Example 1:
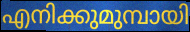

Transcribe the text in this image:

എനിക്കുമുമ്പായി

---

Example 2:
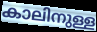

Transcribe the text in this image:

കാലിനുള്ള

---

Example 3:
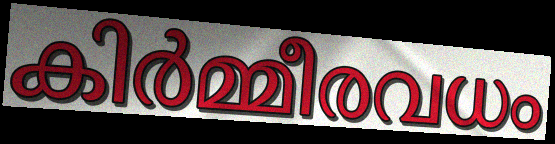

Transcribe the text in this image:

കിർമ്മീരവധം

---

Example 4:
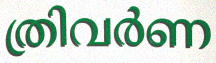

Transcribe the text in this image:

ത്രിവർണ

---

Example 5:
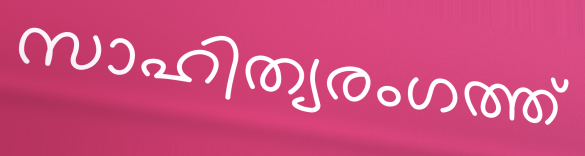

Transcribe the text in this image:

സാഹിത്യരംഗത്ത്